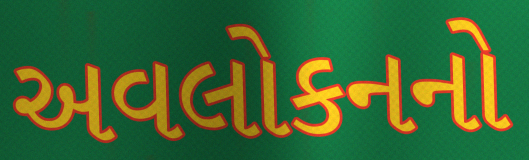
અવલોકનનો